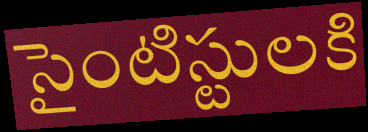
సైంటిస్టులకి